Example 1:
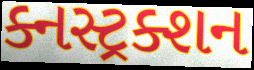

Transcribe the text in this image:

ક્નસ્ટ્રક્શન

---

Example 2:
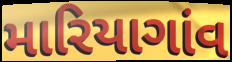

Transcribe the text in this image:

મારિયાગાંવ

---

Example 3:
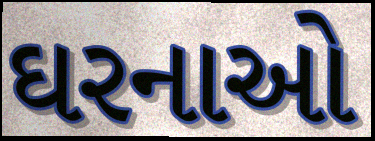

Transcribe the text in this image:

ઘરનાઓ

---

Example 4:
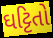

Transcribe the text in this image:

ઘટ્ટિતો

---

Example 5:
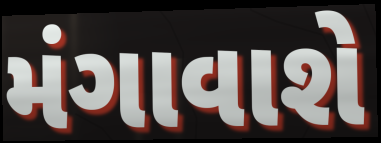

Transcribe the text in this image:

મંગાવાશે